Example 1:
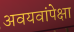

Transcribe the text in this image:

अवयवांपेक्षा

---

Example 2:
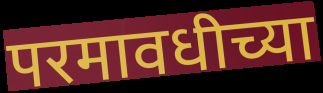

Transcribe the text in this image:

परमावधीच्या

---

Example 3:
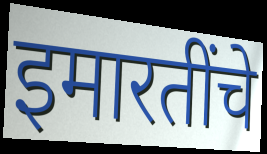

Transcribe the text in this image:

इमारतींचे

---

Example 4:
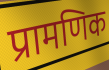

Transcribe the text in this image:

प्रामणिक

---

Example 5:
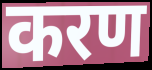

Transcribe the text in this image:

करण